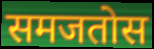
समजतोस